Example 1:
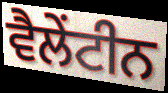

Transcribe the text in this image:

ਵੈਲੇਂਟੀਨ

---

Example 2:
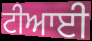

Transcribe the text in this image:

ਟੀਆਈ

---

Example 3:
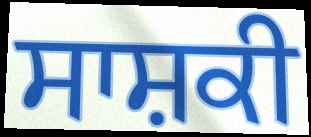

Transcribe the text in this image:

ਸਾਸ਼ਕੀ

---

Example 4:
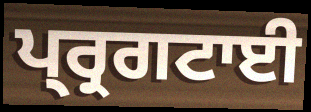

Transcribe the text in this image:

ਪ੍ਰ੍ਰਗਟਾਈ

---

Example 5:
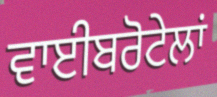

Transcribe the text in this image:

ਵਾਈਬਰੋਟੇਲਾਂ